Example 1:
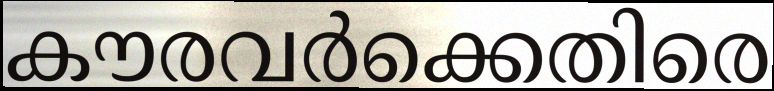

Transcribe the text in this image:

കൗരവർക്കെതിരെ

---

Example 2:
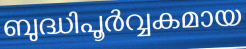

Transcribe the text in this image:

ബുദ്ധിപൂർവ്വകമായ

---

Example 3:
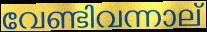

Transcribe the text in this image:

വേണ്ടിവന്നാല്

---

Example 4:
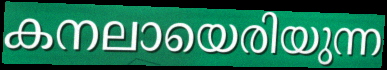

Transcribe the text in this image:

കനലായെരിയുന്ന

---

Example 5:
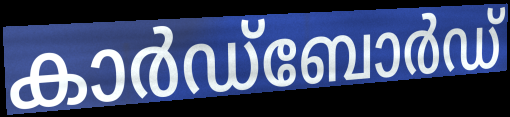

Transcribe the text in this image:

കാർഡ്ബോർഡ്